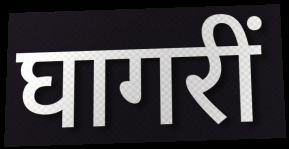
घागरीं